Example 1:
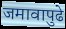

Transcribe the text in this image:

जमावापुढे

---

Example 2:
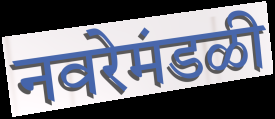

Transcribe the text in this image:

नवरेमंडळी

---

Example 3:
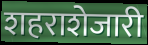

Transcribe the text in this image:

शहराशेजारी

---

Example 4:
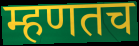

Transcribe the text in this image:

म्हणतच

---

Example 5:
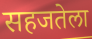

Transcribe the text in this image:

सहजतेला